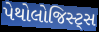
પેથોલોજિસ્ટ્સ